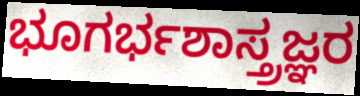
ಭೂಗರ್ಭಶಾಸ್ತ್ರಜ್ಞರ